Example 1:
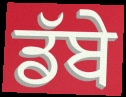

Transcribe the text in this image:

ਡੱਬੇ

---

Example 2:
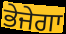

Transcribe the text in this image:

ਭੇਜੇਗਾ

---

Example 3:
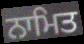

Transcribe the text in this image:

ਨਾਮਿਤ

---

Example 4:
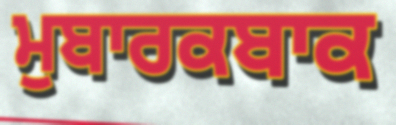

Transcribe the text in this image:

ਮੁਬਾਰਕਬਾਕ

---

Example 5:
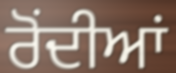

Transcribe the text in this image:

ਰੋਂਦੀਆਂ